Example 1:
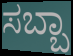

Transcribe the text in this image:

ಸಬ್ಬಾ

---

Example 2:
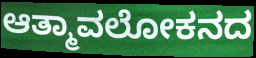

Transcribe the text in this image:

ಆತ್ಮಾವಲೋಕನದ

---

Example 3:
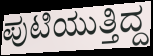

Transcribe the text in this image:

ಪುಟಿಯುತ್ತಿದ್ದ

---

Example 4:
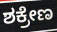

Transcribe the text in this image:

ಶಕ್ರೇಣ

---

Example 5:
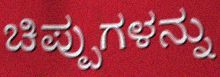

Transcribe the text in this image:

ಚಿಪ್ಪುಗಳನ್ನು